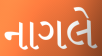
નાગલે